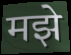
मझे